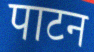
पाटन